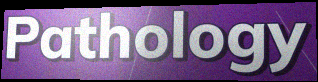
Pathology